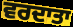
ਵਰਦਾਤਾ